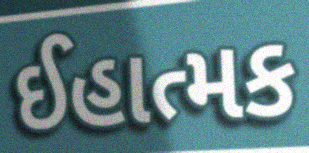
ઈહાત્મક